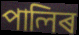
পালিৰ